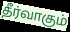
தீர்வாகும்